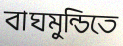
বাঘমুন্ডিতে